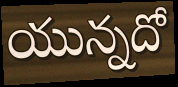
యున్నదో